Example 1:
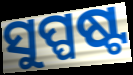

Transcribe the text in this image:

ସୁପ୍ପଷ୍ଟ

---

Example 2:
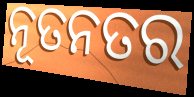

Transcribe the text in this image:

ନୂତନତର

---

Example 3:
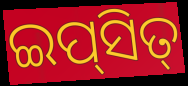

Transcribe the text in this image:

ଇପ୍‌ସିତ୍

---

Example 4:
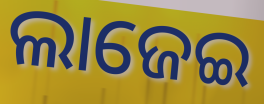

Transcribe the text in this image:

ଲାଜେଇ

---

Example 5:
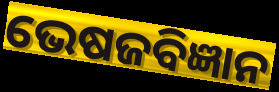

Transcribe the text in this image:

ଭେଷଜବିଜ୍ଞାନ